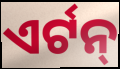
ଏର୍ଟନ୍